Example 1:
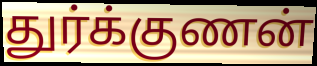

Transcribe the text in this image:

துர்க்குணன்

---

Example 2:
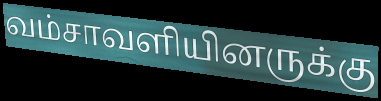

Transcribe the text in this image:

வம்சாவளியினருக்கு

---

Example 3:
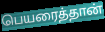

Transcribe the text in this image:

பெயரைத்தான்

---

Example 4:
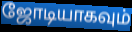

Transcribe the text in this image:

ஜோடியாகவும்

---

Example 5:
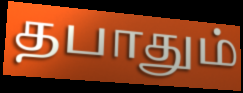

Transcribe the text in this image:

தபாதும்